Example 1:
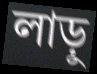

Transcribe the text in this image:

লাড়ু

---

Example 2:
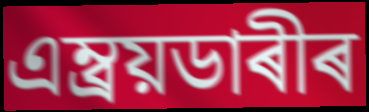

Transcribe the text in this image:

এম্ব্ৰয়ডাৰীৰ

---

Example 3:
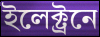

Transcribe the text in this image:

ইলেক্ট্ৰনে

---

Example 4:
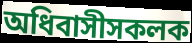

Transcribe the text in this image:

অধিবাসীসকলক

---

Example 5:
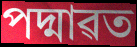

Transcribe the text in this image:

পদ্মাৱত